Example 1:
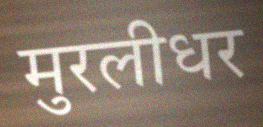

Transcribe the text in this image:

मुरलीधर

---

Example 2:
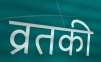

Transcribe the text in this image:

व्रतकी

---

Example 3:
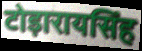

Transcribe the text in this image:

टोड़ारायसिंह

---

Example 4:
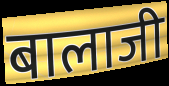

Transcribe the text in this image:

बालाजी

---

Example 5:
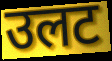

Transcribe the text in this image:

उलट